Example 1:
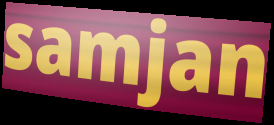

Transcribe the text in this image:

samjan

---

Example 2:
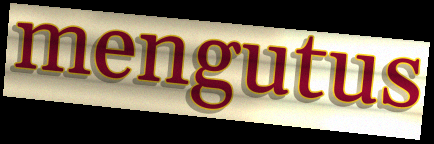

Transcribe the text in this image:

mengutus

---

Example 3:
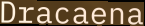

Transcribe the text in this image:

Dracaena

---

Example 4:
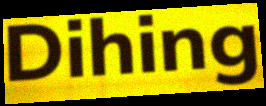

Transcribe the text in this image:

Dihing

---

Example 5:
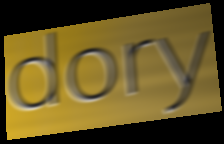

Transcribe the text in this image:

dory